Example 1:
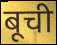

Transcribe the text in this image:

बूची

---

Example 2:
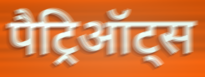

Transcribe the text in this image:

पैट्रिऑट्स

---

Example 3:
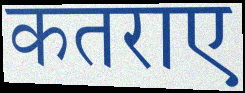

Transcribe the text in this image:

कतराए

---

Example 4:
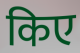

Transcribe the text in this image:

किए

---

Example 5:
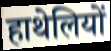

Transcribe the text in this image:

हाथेलियों